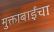
मुक्ताबाईंचा